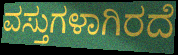
ವಸ್ತುಗಳಾಗಿರದೆ